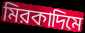
মিরকাদিমে